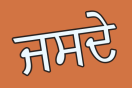
ਜਸਦੇ